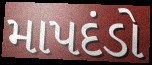
માપદંડો